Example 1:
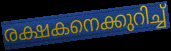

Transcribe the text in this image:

രക്ഷകനെക്കുറിച്ച്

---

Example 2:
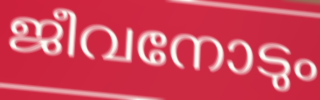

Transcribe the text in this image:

ജീവനോടും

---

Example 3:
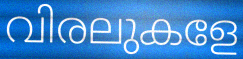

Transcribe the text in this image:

വിരലുകളേ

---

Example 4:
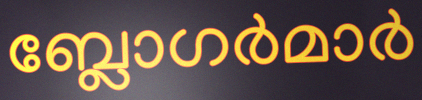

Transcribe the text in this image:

ബ്ലോഗർമാർ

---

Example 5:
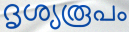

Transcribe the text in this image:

ദൃശ്യരൂപം